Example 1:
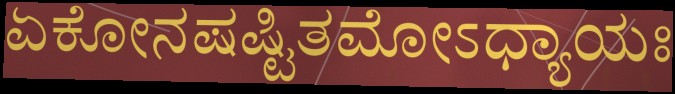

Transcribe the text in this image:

ಏಕೋನಷಷ್ಟಿತಮೋಽಧ್ಯಾಯಃ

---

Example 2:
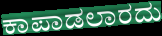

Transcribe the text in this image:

ಕಾಪಾಡಲಾರದು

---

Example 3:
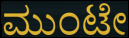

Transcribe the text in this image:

ಮುಂಟೇ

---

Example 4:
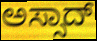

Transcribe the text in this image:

ಅಸ್ಸಾದ್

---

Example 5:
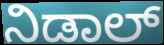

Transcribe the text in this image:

ನಿಡಾಲ್